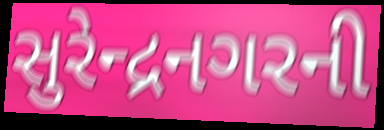
સુરેન્દ્રનગરની